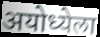
अयोध्येला